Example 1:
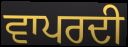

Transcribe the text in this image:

ਵਾਪਰਦੀ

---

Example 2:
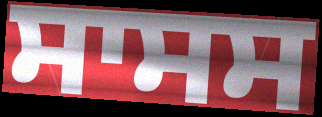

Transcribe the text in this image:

ਸਾਸਸ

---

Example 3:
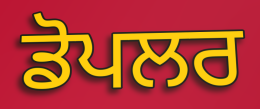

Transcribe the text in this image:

ਡੋਪਲਰ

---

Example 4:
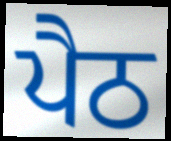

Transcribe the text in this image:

ਪੈਠ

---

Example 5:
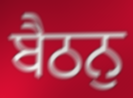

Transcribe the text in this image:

ਬੈਠਨੁ